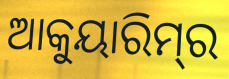
ଆକୁୟାରିମ୍‌ର